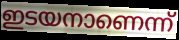
ഇടയനാണെന്ന്